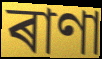
ৰাণা